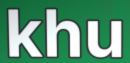
khu